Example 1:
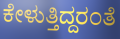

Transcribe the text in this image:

ಕೇಳುತ್ತಿದ್ದರಂತೆ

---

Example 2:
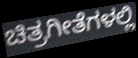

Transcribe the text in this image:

ಚಿತ್ರಗೀತೆಗಳಲ್ಲಿ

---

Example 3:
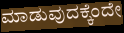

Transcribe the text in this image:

ಮಾಡುವುದಕ್ಕೆಂದೇ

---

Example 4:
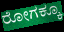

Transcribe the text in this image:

ರೋಗಕ್ಕೂ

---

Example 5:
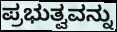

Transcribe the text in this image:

ಪ್ರಭುತ್ವವನ್ನು